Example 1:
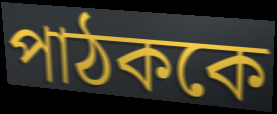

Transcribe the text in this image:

পাঠককে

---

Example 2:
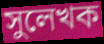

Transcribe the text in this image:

সুলেখক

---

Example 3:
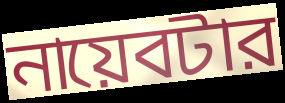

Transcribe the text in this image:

নায়েবটার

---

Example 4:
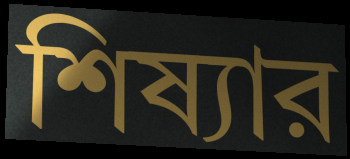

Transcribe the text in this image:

শিষ্যার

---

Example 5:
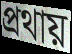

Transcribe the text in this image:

প্রথায়